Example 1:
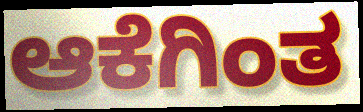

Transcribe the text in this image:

ಆಕೆಗಿಂತ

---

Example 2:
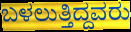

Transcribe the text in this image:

ಬಳಲುತ್ತಿದ್ದವರು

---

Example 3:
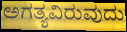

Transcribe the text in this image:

ಅಗತ್ಯವಿರುವುದು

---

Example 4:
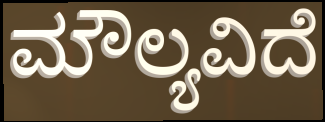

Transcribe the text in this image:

ಮೌಲ್ಯವಿದೆ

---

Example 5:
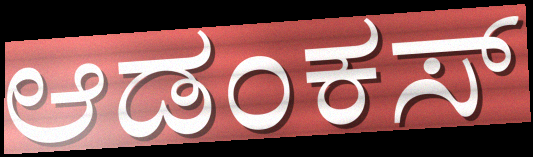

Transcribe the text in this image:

ಆಡಂಕಸ್